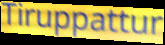
Tiruppattur